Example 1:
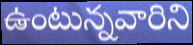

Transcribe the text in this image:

ఉంటున్నవారిని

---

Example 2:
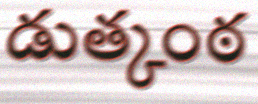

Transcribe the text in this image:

డుత్కంఠ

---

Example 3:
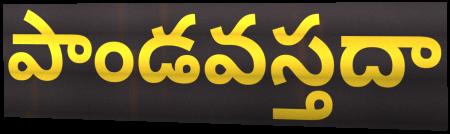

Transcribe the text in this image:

పాండవస్తదా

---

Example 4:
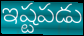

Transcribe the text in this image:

ఇష్టపడు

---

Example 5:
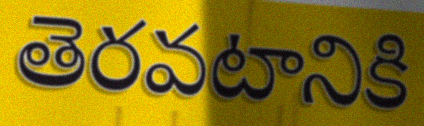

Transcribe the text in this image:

తెరవటానికి